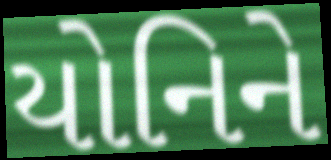
યોનિને